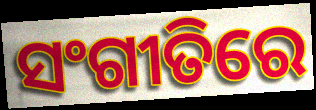
ସଂଗୀତିରେ